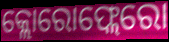
କ୍ଲୋରୋଫ୍ଲେରୋ